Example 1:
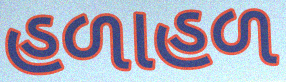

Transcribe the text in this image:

હળાહળ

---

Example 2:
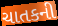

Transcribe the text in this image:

ચાતકની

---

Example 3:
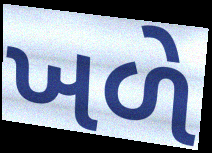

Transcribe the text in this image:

ખળે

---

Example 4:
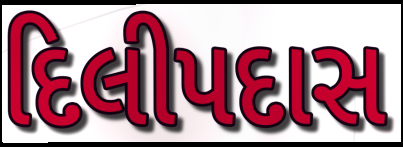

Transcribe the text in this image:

દિલીપદાસ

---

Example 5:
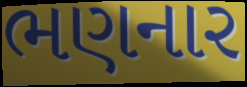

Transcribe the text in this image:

ભણનાર